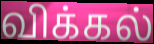
விக்கல்